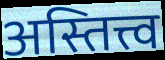
अस्तित्त्व